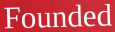
Founded